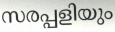
സരപ്പളിയും